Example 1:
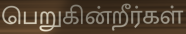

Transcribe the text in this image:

பெறுகின்றீர்கள்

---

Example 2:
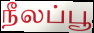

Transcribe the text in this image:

நீலப்பூ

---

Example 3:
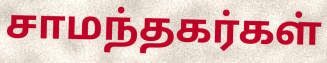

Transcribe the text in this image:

சாமந்தகர்கள்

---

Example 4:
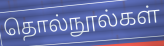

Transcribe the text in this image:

தொல்நூல்கள்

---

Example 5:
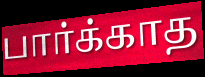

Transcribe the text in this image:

பார்க்காத